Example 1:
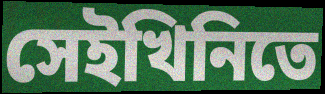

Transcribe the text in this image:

সেইখিনিতে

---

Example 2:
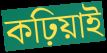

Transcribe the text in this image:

কঢ়িয়াই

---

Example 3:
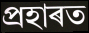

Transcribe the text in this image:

প্ৰহাৰত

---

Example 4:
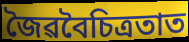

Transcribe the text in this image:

জৈৱবৈচিত্ৰতাত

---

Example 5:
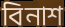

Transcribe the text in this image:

বিনাশ